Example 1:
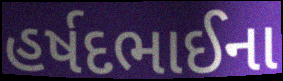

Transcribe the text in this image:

હર્ષદભાઈના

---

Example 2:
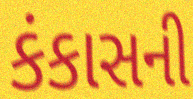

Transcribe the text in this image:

કંકાસની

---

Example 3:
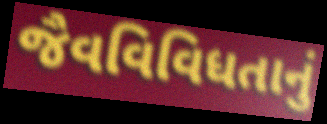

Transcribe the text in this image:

જૈવવિવિધતાનું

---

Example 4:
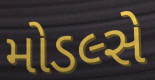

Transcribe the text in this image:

મોડલ્સે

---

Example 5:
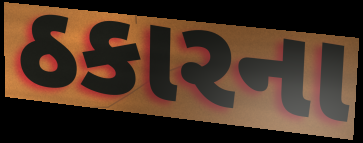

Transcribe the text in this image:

ઠકારના